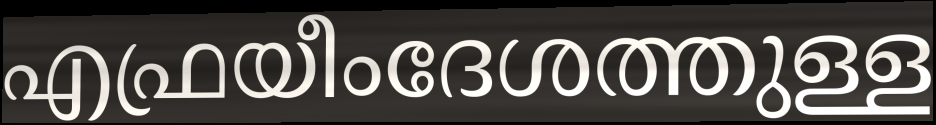
എഫ്രയീംദേശത്തുള്ള